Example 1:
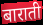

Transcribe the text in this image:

बाराती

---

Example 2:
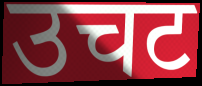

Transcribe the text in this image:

उचट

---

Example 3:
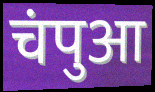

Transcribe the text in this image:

चंपुआ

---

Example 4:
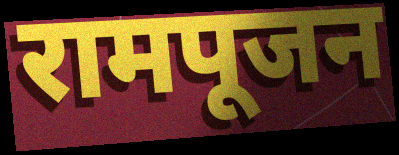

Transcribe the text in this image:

रामपूजन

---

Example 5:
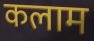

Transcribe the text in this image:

कलाम